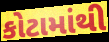
કોટામાંથી